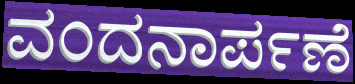
ವಂದನಾರ್ಪಣೆ